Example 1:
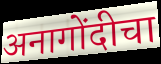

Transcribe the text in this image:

अनागोंदीचा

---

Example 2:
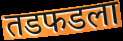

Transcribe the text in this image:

तडफडला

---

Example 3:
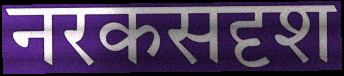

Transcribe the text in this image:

नरकसदृश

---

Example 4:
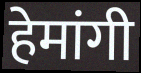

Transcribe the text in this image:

हेमांगी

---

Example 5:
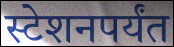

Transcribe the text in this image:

स्टेशनपर्यंत